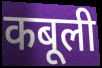
कबूली